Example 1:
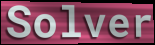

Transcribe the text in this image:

Solver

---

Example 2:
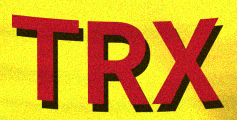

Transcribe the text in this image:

TRX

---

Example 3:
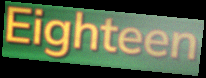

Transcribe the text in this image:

Eighteen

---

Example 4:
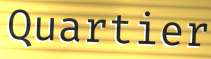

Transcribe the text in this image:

Quartier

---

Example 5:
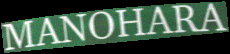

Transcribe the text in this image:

MANOHARA